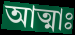
আত্মাঃ